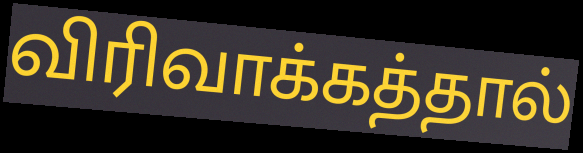
விரிவாக்கத்தால்